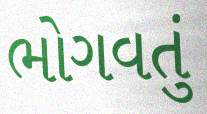
ભોગવતું